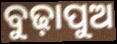
ବୁଢ଼ାପୁଅ